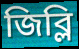
জিব্লি